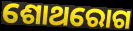
ଶୋଥରୋଗ